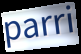
parri